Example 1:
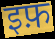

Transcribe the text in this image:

इफ़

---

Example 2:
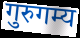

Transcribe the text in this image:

गुरुगम्य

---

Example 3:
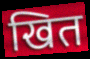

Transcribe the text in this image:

खित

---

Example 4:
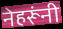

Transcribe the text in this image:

नेहरूंनी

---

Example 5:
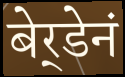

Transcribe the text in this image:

बेर्डेनं